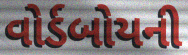
વોર્ડબોયની